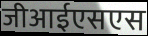
जीआईएसएस